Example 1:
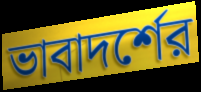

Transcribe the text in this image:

ভাবাদর্শের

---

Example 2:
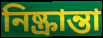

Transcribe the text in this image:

নিষ্ক্রান্তা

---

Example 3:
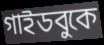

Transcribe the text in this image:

গাইডবুকে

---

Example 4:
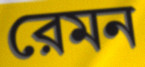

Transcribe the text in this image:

রেমন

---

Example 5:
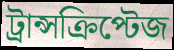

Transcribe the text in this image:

ট্রান্সক্রিপ্টেজ